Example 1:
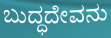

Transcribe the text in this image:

ಬುದ್ಧದೇವನು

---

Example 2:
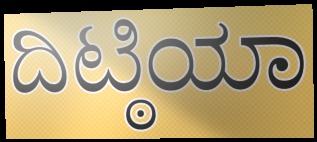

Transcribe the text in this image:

ದಿಟ್ಠಿಯಾ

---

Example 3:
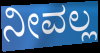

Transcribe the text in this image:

ನೀವಲ್ಲ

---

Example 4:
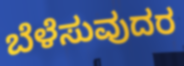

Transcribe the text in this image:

ಬೆಳೆಸುವುದರ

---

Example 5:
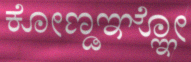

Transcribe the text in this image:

ಕೋಣ್ಡಞ್ಞೋ